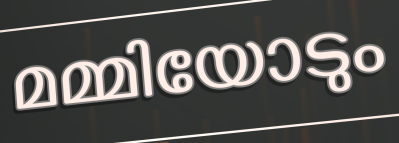
മമ്മിയോടും